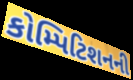
કોમ્પિટિશનની